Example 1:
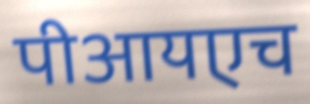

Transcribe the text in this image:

पीआयएच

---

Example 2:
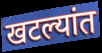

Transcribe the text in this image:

खटल्यांत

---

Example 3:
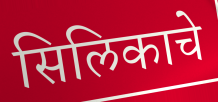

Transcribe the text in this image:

सिलिकाचे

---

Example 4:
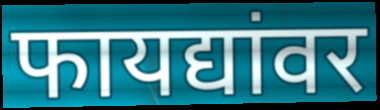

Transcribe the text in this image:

फायद्यांवर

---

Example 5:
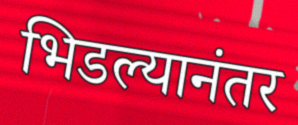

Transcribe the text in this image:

भिडल्यानंतर